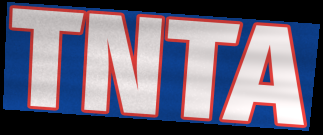
TNTA